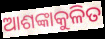
ଆଶଙ୍କାକୁଳିତ